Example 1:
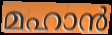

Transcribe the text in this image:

മഹാൻ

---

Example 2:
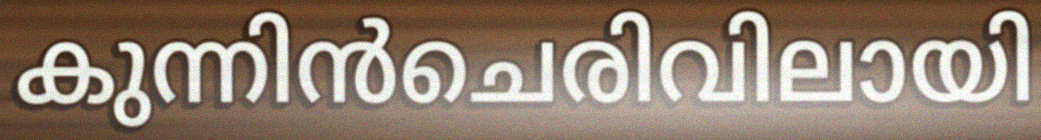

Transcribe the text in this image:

കുന്നിൻചെരിവിലായി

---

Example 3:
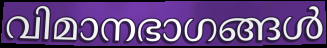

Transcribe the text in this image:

വിമാനഭാഗങ്ങൾ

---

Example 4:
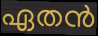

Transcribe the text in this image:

ഏതൻ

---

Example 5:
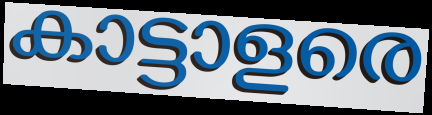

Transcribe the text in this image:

കാട്ടാളരെ